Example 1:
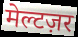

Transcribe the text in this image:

मेल्टज़र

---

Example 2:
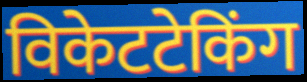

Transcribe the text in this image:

विकेटटेकिंग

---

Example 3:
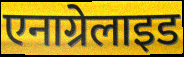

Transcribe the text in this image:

एनाग्रेलाइड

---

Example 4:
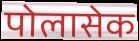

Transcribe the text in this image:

पोलासेक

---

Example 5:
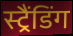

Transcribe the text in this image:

स्ट्रैंडिंग